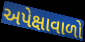
અપેક્ષાવાળો